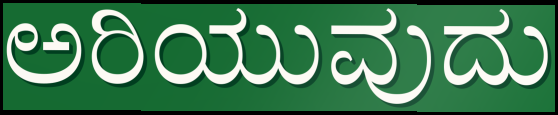
ಅರಿಯುವುದು